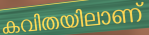
കവിതയിലാണ്